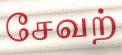
சேவற்